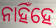
ନାହିଁହେ